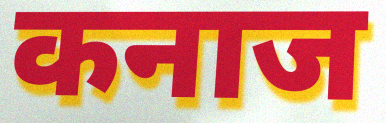
कनाज